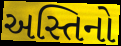
અસ્તિનો